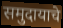
समुदायाचे